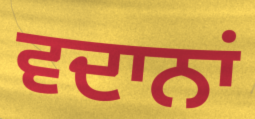
ਵਦਾਨਾਂ